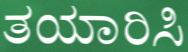
ತಯಾರಿಸಿ